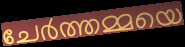
ചേർത്തമ്മയെ